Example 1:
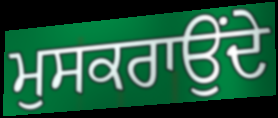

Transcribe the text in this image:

ਮੁਸਕਰਾਉਂਦੇ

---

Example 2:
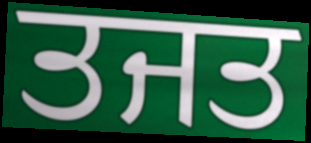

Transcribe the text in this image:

ਤਜਤ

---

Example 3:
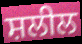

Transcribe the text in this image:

ਸ਼ਲੀਲ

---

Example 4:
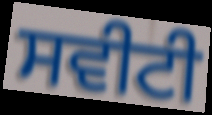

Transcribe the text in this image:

ਸਵੀਟੀ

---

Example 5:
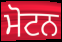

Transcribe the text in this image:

ਮੋਟਨ